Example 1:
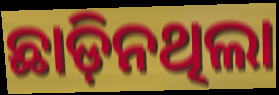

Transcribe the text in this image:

ଛାଡ଼ିନଥିଲା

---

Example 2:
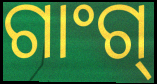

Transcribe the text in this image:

ଗାଂଗ୍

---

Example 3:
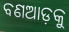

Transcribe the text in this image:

ବଣଆଡ଼କୁ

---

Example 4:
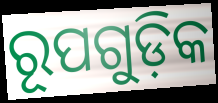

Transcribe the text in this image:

ରୂପଗୁଡ଼ିକ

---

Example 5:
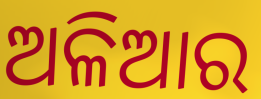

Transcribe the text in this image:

ଅଳିଆର